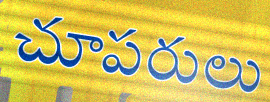
చూపరులు